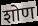
शोण